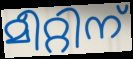
മീറ്റിന്